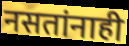
नसतांनाही